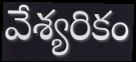
వేశ్యరికం